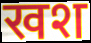
खश